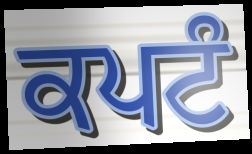
ਕਪਟੰ